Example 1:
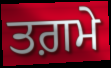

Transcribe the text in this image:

ਤਗ਼ਮੇ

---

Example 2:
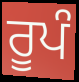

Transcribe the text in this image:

ਰੂਪੰ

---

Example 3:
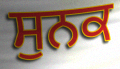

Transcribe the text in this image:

ਸੁਨਕ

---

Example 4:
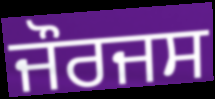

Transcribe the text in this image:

ਜੌਰਜਸ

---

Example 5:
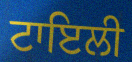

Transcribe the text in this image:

ਟਾਇਲੀ